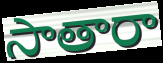
సాతారా